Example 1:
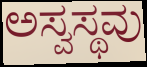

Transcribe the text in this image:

ಅಸ್ವಸ್ಥವು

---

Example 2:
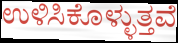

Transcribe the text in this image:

ಉಳಿಸಿಕೊಳ್ಳುತ್ತವೆ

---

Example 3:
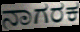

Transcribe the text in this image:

ನಾಗರಕ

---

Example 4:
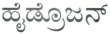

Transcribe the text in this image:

ಹೈಡ್ರೊಜನ್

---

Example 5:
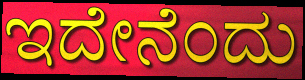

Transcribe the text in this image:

ಇದೇನೆಂದು